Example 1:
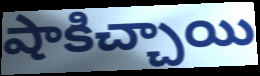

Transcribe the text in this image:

షాకిచ్చాయి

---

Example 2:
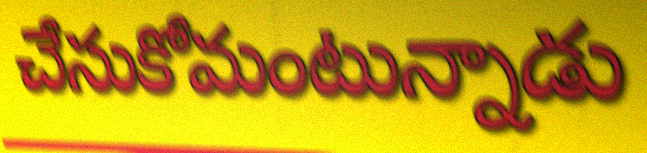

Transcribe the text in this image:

చేసుకోమంటున్నాడు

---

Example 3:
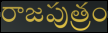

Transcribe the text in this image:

రాజపుత్రం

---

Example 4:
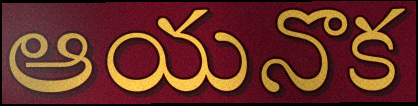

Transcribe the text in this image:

ఆయనొక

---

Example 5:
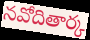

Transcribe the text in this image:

నవోదితార్క